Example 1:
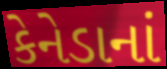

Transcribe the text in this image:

કેનેડાનાં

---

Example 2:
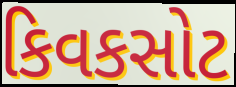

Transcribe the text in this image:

કિવકસોટ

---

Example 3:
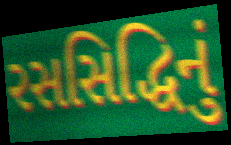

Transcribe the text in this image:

રસસિદ્ધિનું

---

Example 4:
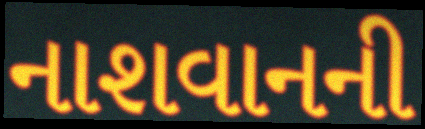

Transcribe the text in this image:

નાશવાનની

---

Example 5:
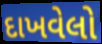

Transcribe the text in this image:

દાખવેલો